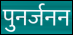
पुनर्जनन